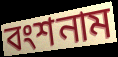
বংশনাম